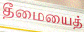
தீமையைத்